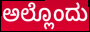
ಅಲ್ಲೊಂದು